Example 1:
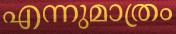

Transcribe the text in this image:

എന്നുമാത്രം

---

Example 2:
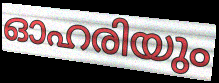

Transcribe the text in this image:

ഓഹരിയും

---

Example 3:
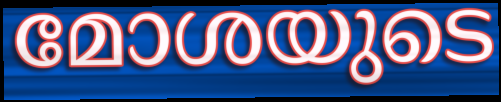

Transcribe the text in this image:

മോശയുടെ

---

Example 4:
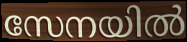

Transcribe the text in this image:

സേനയിൽ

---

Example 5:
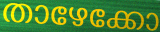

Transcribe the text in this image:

താഴേക്കോ